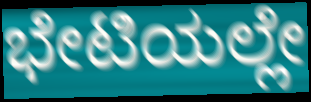
ಭೇಟಿಯಲ್ಲೇ